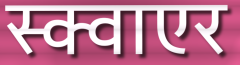
स्क्वाएर